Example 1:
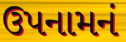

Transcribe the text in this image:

ઉપનામનં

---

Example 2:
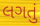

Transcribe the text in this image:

લગતું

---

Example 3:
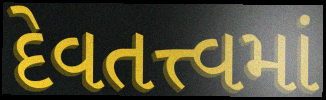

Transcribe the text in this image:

દેવતત્ત્વમાં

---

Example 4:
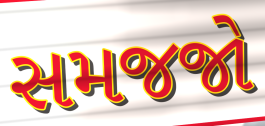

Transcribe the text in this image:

સમજજો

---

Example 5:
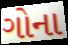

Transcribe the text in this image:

ગોના